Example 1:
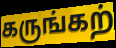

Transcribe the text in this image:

கருங்கற்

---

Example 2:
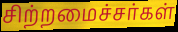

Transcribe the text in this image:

சிற்றமைச்சர்கள்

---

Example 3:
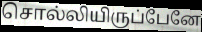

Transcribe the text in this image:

சொல்லியிருப்பேனே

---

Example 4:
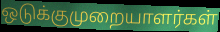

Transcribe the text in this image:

ஒடுக்குமுறையாளர்கள்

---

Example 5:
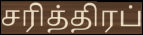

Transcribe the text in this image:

சரித்திரப்